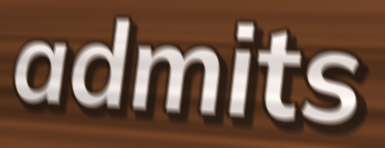
admits